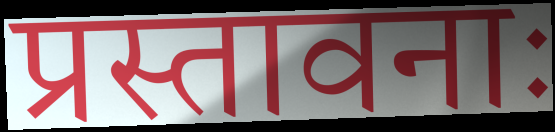
प्रस्तावनाः